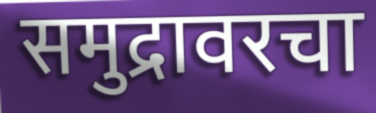
समुद्रावरचा